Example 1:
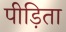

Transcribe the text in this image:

पीड़िता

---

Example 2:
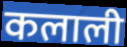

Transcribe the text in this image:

कलाली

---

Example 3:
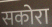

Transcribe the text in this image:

सकोरा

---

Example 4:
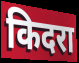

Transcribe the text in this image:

किदरा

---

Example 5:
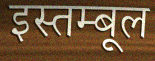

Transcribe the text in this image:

इस्तम्बूल